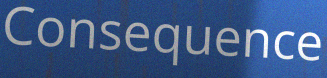
Consequence